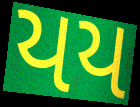
યય